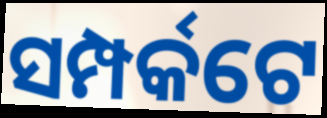
ସମ୍ପର୍କଟେ